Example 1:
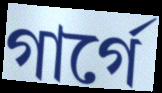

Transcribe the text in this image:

গাৰ্গে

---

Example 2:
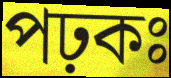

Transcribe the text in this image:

পঢ়কঃ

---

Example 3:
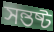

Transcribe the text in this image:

সন্তষ্ট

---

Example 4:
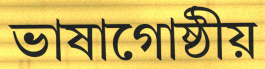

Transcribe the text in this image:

ভাষাগোষ্ঠীয়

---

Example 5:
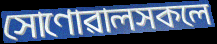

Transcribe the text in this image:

সোণোৱালসকলে